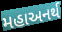
મહાઅનર્થ